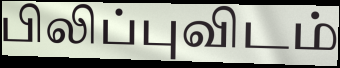
பிலிப்புவிடம்